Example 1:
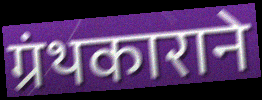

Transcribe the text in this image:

ग्रंथकाराने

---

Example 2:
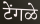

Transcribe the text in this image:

टेंगळे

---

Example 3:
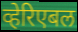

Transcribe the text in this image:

व्हेरिएबल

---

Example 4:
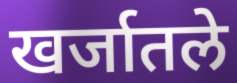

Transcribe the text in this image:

खर्जातले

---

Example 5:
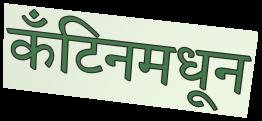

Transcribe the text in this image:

कँटिनमधून